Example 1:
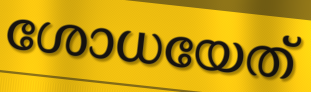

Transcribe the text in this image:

ശോധയേത്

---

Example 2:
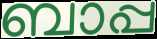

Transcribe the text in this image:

ബാപ്പ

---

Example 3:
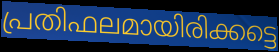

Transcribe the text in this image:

പ്രതിഫലമായിരിക്കട്ടെ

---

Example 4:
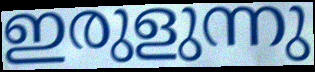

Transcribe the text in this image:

ഇരുളുന്നു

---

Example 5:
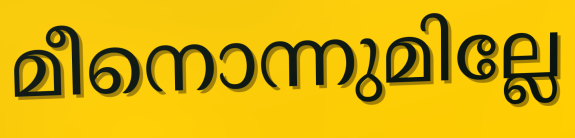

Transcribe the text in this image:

മീനൊന്നുമില്ലേ